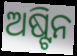
ଅଷ୍ଟିନ